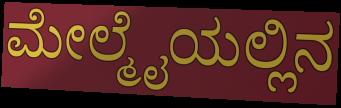
ಮೇಲ್ಮೈಯಲ್ಲಿನ